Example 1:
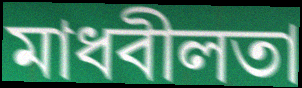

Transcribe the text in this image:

মাধবীলতা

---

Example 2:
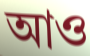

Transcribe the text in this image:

আও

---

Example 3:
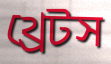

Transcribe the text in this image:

থ্রেটস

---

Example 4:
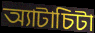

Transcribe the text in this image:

অ্যাটাচিটা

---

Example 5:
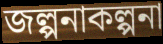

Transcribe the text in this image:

জল্পনাকল্পনা